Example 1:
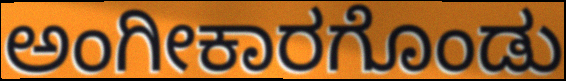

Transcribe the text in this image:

ಅಂಗೀಕಾರಗೊಂಡು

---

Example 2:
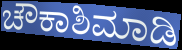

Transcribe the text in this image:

ಚೌಕಾಶಿಮಾಡಿ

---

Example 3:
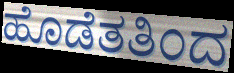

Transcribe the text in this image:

ಹೊಡೆತತಿಂದ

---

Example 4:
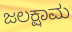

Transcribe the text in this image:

ಜಲಕ್ಷಾಮ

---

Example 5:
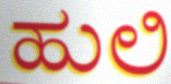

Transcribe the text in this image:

ಹುಲಿ